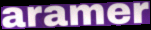
aramer